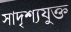
সাদৃশ্যযুক্ত